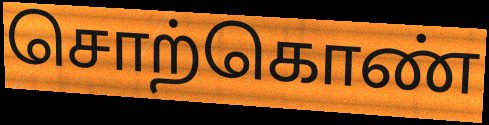
சொற்கொண்